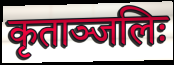
कृताञ्जलिः